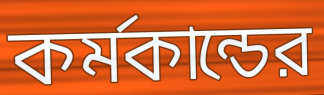
কর্মকান্ডের